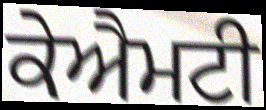
ਕੇਐਮਟੀ